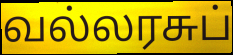
வல்லரசுப்